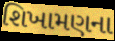
શિખામણના